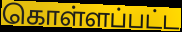
கொள்ளப்பட்ட